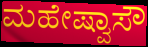
ಮಹೇಷ್ವಾಸೌ